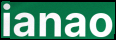
ianao